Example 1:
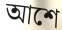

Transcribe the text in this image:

আশে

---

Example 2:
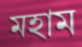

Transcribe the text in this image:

মহাম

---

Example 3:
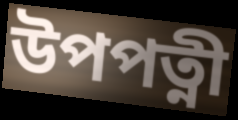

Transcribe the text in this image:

উপপত্নী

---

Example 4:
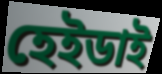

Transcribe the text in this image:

হেইডাই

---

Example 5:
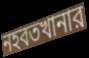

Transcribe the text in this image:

নহবতখানার